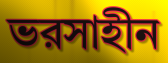
ভরসাহীন